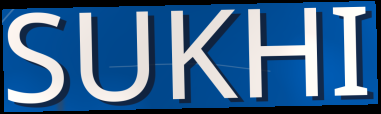
SUKHI